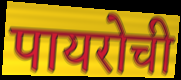
पायरोची